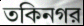
তকিনগর